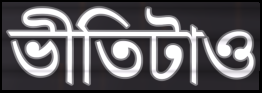
ভীতিটাও